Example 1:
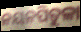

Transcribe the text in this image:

ନୟନପିତୁଳା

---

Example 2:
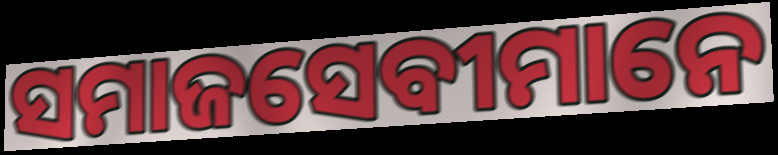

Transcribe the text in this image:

ସମାଜସେବୀମାନେ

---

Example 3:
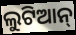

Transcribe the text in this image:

ଲୁଟିଆନ୍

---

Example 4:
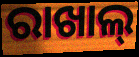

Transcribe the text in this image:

ରାଖାଲ୍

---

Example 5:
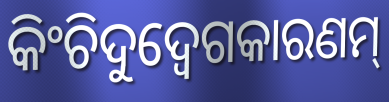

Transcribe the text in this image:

କିଂଚିଦୁଦ୍ବେଗକାରଣମ୍